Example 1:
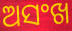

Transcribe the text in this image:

ଅସଂଖ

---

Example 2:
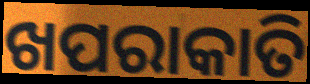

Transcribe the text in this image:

ଖପରାକାତି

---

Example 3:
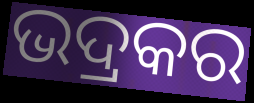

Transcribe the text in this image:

ଭଦ୍ରକର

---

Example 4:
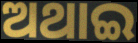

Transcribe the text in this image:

ଅଥାଇ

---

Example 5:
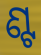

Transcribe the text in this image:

ଣ୍ଟ